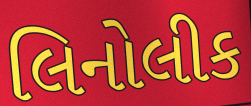
લિનોલીક